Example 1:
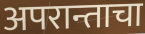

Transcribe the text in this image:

अपरान्ताचा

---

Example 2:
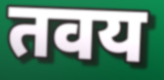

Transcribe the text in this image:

तवय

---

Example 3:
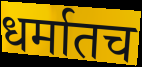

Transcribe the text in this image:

धर्मातच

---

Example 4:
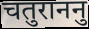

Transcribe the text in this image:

चतुराननु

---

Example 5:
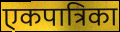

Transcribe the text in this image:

एकपात्रिका